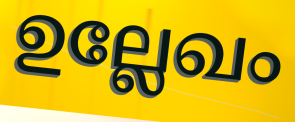
ഉല്ലേഖം